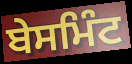
ਬੇਸਮਿੰਟ